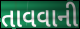
તાવવાની